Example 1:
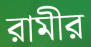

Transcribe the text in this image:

রামীর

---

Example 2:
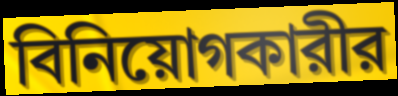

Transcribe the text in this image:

বিনিয়োগকারীর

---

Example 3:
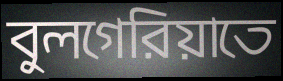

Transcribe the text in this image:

বুলগেরিয়াতে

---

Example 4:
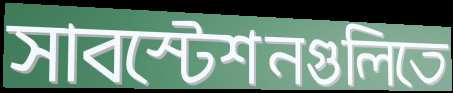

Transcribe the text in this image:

সাবস্টেশনগুলিতে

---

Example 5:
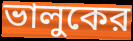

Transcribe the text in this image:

ভালুকের